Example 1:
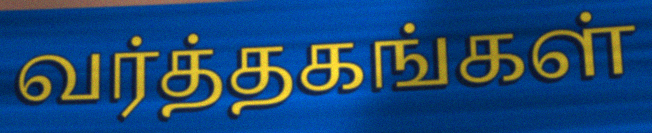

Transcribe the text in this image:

வர்த்தகங்கள்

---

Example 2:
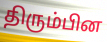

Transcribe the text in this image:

திரும்பின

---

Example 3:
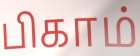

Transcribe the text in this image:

பிகாம்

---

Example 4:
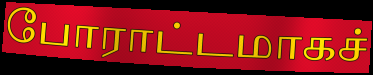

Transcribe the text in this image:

போராட்டமாகச்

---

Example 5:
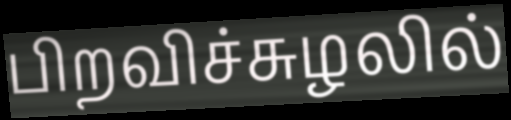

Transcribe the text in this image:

பிறவிச்சுழலில்